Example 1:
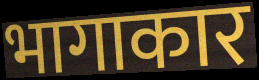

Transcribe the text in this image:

भागाकार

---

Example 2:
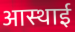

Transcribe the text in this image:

आस्थाई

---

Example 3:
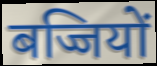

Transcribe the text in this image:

बज्जियों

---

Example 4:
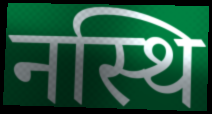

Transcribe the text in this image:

नस्थि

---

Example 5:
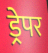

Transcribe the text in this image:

ड्रेपर